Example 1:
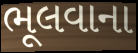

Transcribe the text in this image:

ભૂલવાના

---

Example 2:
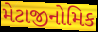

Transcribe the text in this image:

મેટાજીનોમિક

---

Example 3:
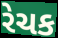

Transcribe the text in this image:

રેચક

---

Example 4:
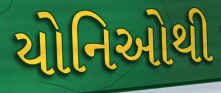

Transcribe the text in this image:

યોનિઓથી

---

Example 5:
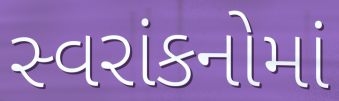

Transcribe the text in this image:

સ્વરાંકનોમાં